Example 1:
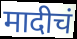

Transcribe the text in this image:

मादीचं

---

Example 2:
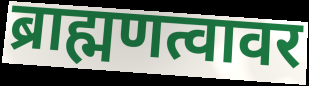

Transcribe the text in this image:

ब्राह्मणत्वावर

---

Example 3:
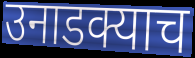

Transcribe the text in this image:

उनाडक्याच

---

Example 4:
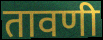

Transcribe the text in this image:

तावणी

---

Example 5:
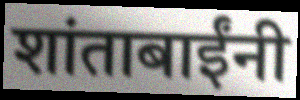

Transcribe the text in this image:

शांताबाईंनी